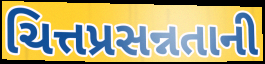
ચિત્તપ્રસન્નતાની